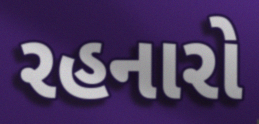
રહનારો